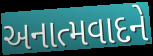
અનાત્મવાદને